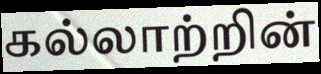
கல்லாற்றின்